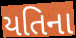
યતિના